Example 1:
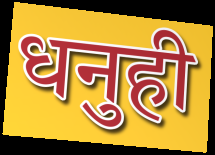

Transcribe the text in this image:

धनुही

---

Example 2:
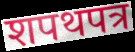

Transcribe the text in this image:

शपथपत्र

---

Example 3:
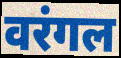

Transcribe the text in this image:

वरंगल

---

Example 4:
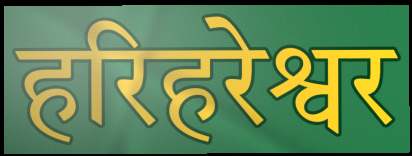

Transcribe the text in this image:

हरिहरेश्वर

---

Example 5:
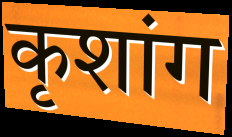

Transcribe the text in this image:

कृशांग